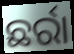
ଛର୍ରା